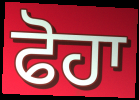
ਫੋਹਾ